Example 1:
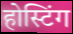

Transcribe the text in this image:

होस्टिंग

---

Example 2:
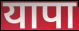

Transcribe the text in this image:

यापा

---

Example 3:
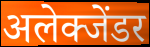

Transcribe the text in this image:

अलेक्जेंडर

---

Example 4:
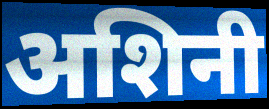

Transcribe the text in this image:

अशिनी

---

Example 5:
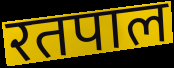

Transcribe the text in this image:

रतपाल